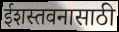
ईशस्तवनासाठी